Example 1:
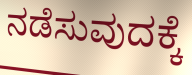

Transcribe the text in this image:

ನಡೆಸುವುದಕ್ಕೆ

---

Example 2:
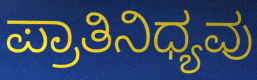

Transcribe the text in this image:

ಪ್ರಾತಿನಿಧ್ಯವು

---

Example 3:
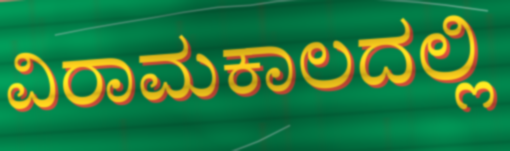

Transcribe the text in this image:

ವಿರಾಮಕಾಲದಲ್ಲಿ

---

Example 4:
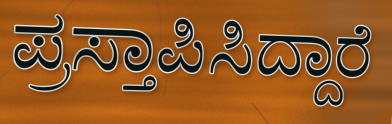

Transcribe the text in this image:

ಪ್ರಸ್ತಾಪಿಸಿದ್ದಾರೆ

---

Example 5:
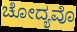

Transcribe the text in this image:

ಚೋದ್ಯವೊ